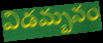
విడమ్బనం